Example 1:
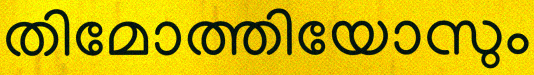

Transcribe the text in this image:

തിമോത്തിയോസും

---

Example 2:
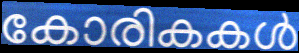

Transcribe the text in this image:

കോരികകൾ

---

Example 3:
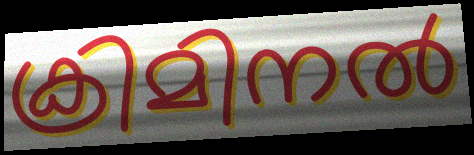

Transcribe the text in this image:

ക്രിമിനൽ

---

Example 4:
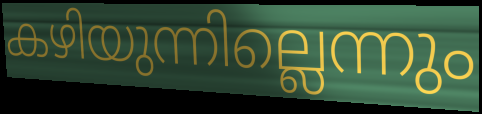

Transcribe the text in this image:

കഴിയുന്നില്ലെന്നും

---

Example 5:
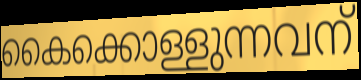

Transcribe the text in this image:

കൈക്കൊള്ളുന്നവന്